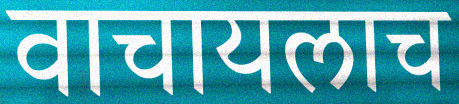
वाचायलाच